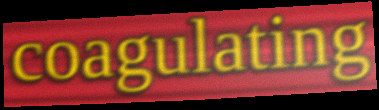
coagulating